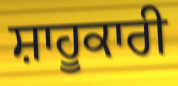
ਸ਼ਾਹੂਕਾਰੀ